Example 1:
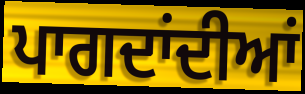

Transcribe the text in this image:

ਪਾਗਦਾਂਦੀਆਂ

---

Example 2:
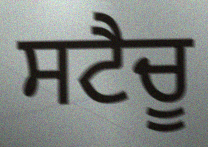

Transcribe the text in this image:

ਸਟੈਚੂ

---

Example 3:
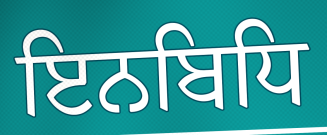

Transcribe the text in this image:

ਇਨਬਿਧਿ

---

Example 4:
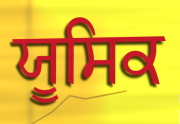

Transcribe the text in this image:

ਯੂਸਿਕ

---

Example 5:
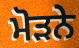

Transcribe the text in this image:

ਮੋੜਨੇ